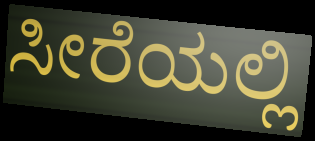
ಸೀರೆಯಲ್ಲಿ